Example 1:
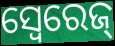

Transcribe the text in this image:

ସ୍ବେରେଜ୍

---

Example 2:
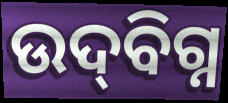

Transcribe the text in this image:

ଉଦ୍‍ବିଗ୍ନ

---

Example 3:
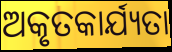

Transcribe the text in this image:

ଅକୃତକାର୍ଯ୍ୟତା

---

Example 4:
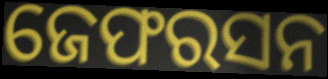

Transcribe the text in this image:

ଜେଫରସନ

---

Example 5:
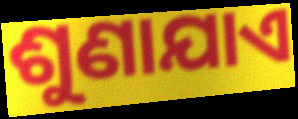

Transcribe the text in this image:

ଶୁଣାଯାଏ